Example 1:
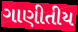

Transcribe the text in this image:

ગાણીતીય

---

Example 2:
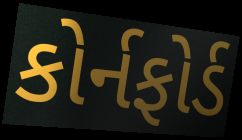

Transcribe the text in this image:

કોર્નફોર્ડ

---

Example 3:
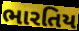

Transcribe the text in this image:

ભારતિય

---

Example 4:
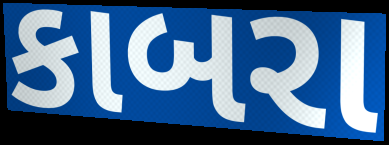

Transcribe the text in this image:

કાબરા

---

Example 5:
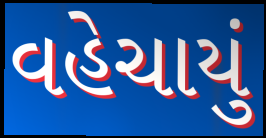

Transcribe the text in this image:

વહેચાયું